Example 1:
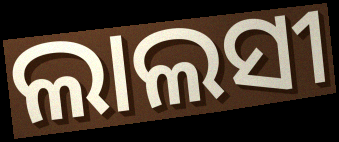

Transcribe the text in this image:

ଲାଲସୀ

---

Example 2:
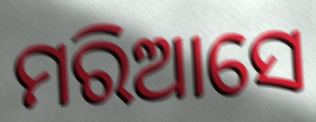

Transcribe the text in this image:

ମରିଆସେ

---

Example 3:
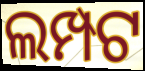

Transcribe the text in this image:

ଲମ୍ପଟ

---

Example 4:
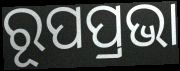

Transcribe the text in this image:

ରୂପପ୍ରଭା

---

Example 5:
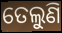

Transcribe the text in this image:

ତେଲୁଣି